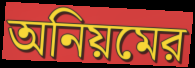
অনিয়মের